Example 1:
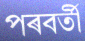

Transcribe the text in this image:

পৰবৰ্তী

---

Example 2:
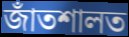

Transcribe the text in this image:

জাঁতশালত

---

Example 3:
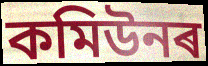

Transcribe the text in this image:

কমিউনৰ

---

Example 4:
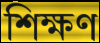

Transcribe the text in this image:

শিক্ষণ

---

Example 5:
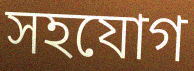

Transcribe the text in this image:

সহযোগ